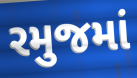
રમુજમાં